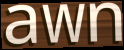
awn